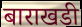
बाराखडी